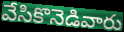
వేసికొనెడివారు